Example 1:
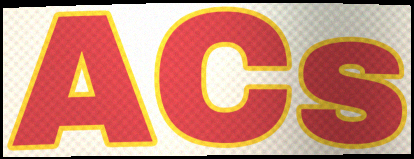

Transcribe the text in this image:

ACs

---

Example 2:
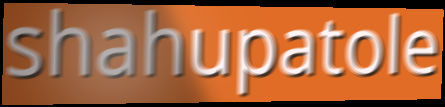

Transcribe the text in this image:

shahupatole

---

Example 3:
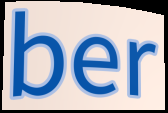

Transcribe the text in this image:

ber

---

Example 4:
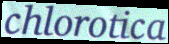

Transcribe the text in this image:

chlorotica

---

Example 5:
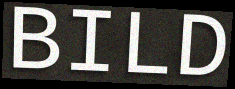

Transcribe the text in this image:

BILD